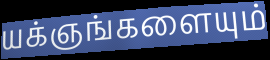
யக்ஞங்களையும்